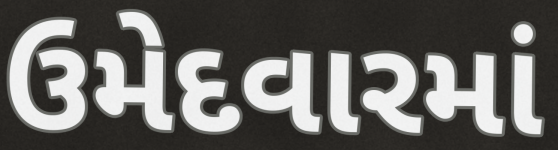
ઉમેદવારમાં